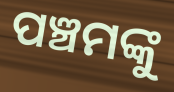
ପଞ୍ଚମଙ୍କୁ